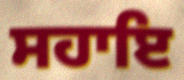
ਸਹਾਇ